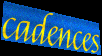
cadences